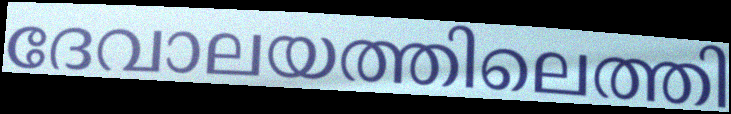
ദേവാലയത്തിലെത്തി